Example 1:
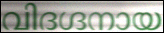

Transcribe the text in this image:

വിദഗ്ദനായ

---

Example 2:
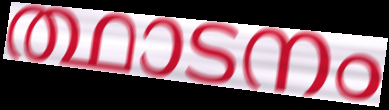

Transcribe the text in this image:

ത്ഥാടനം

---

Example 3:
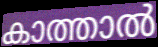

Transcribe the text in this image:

കാത്താൽ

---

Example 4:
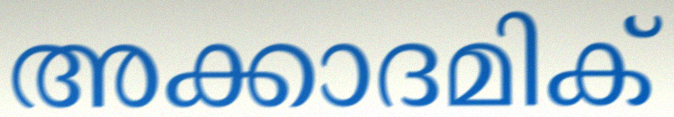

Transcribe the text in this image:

അക്കാദമിക്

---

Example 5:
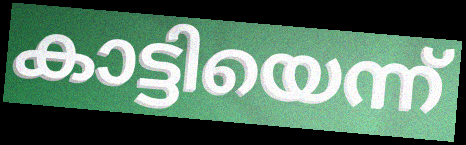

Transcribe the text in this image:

കാട്ടിയെന്ന്